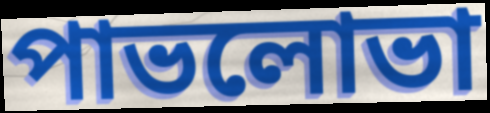
পাভলোভা